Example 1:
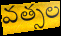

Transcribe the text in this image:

వత్సల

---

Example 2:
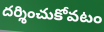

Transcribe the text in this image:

దర్శించుకోవటం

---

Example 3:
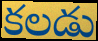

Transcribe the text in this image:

కలడు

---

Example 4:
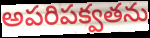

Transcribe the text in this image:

అపరిపక్వతను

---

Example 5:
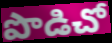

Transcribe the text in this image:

పొడిచో